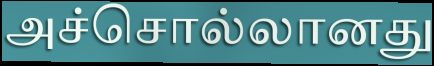
அச்சொல்லானது